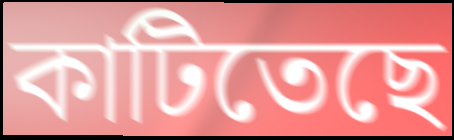
কাটিতেছে